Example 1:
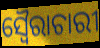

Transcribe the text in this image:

ସ୍ୱୈରାଚାରୀ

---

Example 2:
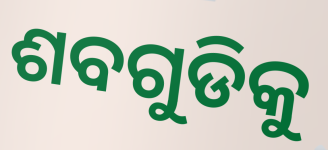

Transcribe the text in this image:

ଶବଗୁଡିକୁ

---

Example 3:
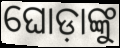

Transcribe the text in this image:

ଘୋଡ଼ାଙ୍କୁ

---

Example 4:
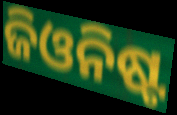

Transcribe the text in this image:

ଜିଓନିଷ୍ଟ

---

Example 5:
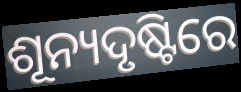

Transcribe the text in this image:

ଶୂନ୍ୟଦୃଷ୍ଟିରେ